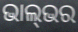
ଭାଲ୍‌ଭର